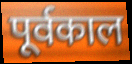
पूर्वकाल